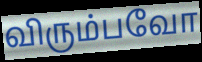
விரும்பவோ